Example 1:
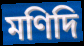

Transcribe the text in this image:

মণিদি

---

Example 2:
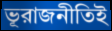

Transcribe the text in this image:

ভূরাজনীতিই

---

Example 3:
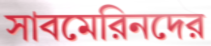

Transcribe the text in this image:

সাবমেরিনদের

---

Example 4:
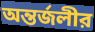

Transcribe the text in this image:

অন্তর্জলীর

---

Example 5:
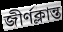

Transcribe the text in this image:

জীর্ণক্লান্ত